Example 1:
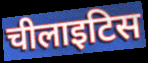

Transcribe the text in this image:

चीलाइटिस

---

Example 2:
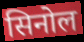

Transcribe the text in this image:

सिनोल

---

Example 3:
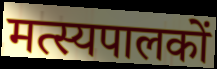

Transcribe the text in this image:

मत्स्यपालकों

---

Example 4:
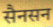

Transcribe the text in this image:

सैनसन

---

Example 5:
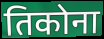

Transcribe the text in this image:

तिकोना